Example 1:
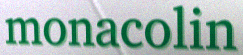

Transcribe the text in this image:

monacolin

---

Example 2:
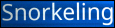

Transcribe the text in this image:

Snorkeling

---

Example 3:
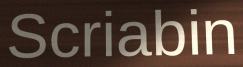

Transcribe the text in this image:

Scriabin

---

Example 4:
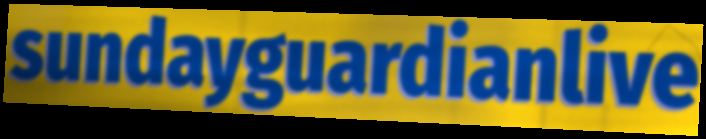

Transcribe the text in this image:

sundayguardianlive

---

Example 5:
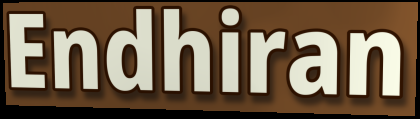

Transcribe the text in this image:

Endhiran